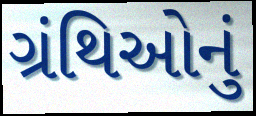
ગ્રંથિઓનું